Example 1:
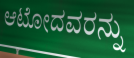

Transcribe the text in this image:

ಆಟೋದವರನ್ನು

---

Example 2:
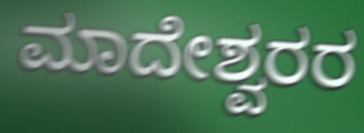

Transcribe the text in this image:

ಮಾದೇಶ್ವರರ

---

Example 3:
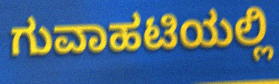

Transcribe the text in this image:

ಗುವಾಹಟಿಯಲ್ಲಿ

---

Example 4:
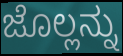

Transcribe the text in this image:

ಜೊಲ್ಲನ್ನು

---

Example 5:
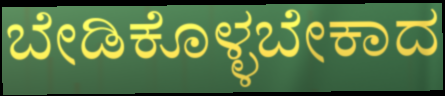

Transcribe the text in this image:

ಬೇಡಿಕೊಳ್ಳಬೇಕಾದ